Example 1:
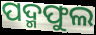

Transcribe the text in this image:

ପଦ୍ମଫୁଲ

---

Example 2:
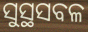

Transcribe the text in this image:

ସୁସ୍ଥସବଳ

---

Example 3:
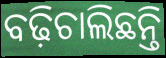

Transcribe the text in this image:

ବଢ଼ିଚାଲିଛନ୍ତି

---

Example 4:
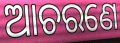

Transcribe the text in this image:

ଆଚରଣେ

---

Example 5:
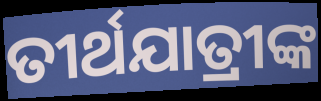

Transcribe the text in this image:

ତୀର୍ଥଯାତ୍ରୀଙ୍କ